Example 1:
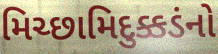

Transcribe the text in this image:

મિચ્છામિદુક્કડંનો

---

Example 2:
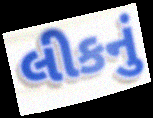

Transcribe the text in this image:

લીકનું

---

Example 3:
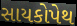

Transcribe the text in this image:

સાયકોપેથ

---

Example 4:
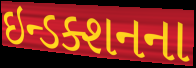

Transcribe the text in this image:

ઇન્ડક્શનના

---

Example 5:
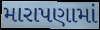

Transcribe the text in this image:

મારાપણામાં